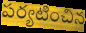
పర్యటించిన